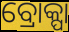
ବ୍ରୋକ୍ପା